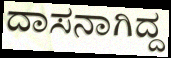
ದಾಸನಾಗಿದ್ದ